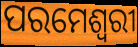
ପରମେଶ୍ୱରୀ